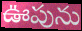
ఊపును